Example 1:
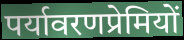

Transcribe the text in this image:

पर्यावरणप्रेमियों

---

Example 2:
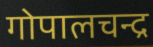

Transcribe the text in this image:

गोपालचन्द्र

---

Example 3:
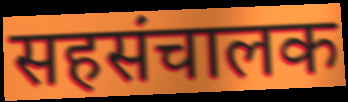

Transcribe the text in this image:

सहसंचालक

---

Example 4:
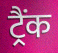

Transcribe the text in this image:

ट्रैंक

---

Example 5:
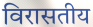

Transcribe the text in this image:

विरासतीय